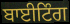
ਬਾਈਟਿੰਗ